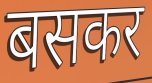
बसकर